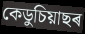
কেডুচিয়াছৰ